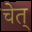
चेत्